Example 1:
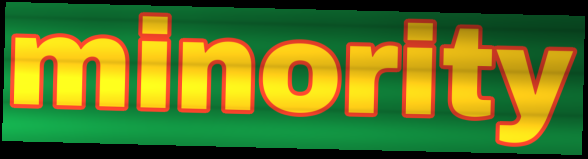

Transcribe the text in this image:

minority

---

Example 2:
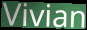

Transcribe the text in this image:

Vivian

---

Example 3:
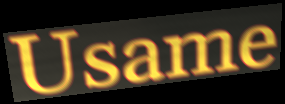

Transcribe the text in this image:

Usame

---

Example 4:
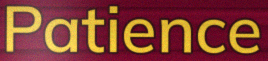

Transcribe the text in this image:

Patience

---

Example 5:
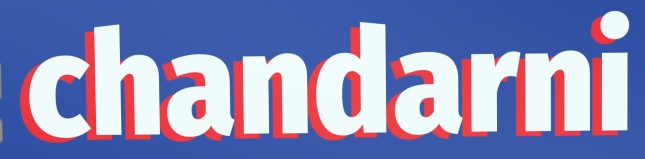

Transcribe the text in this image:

chandarni